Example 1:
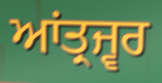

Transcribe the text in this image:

ਆਂਤ੍ਰਜ੍ਵਰ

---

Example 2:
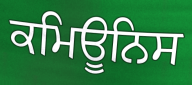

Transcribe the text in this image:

ਕਮਿਊਨਿਸ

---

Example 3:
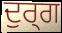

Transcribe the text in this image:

ਦੁਰ੍ਗ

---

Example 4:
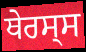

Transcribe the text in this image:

ਥੇਰਸ੍ਸ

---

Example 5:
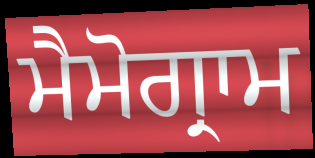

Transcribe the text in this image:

ਮੈਮੋਗ੍ਰਾਮ